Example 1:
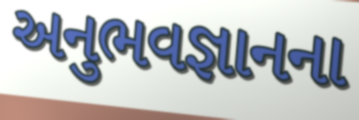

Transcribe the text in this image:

અનુભવજ્ઞાનના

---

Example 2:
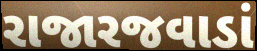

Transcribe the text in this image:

રાજારજવાડાં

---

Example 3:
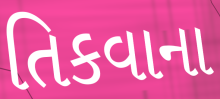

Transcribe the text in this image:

તિકવાના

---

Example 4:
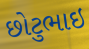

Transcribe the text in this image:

છોટુભાઇ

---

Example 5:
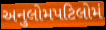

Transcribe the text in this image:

અનુલોમપટિલોમં